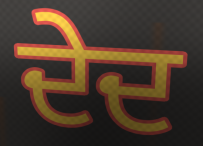
ਦੇਦ